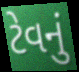
ટેવનું